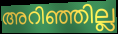
അറിഞ്ഞില്ല